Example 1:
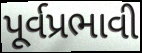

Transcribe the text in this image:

પૂર્વપ્રભાવી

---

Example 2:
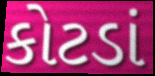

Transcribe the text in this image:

કોટડાં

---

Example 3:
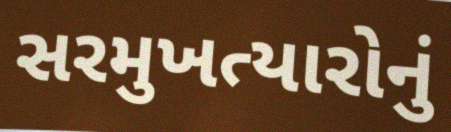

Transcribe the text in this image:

સરમુખત્યારોનું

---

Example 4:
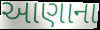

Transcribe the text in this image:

આણાના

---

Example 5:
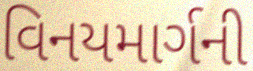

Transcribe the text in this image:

વિનયમાર્ગની